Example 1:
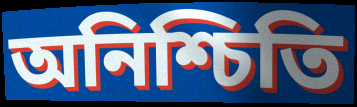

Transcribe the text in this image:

অনিশ্চিতি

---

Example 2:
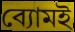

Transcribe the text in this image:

ব্যোমই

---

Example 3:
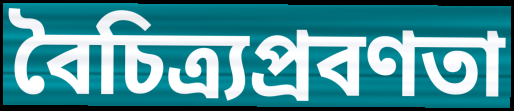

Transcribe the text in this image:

বৈচিত্র্যপ্রবণতা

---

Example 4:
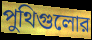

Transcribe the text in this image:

পুথিগুলোর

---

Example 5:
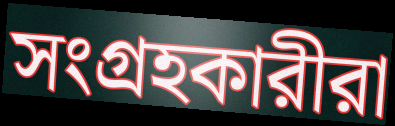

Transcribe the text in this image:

সংগ্রহকারীরা